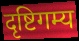
दृष्टिगम्य